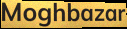
Moghbazar